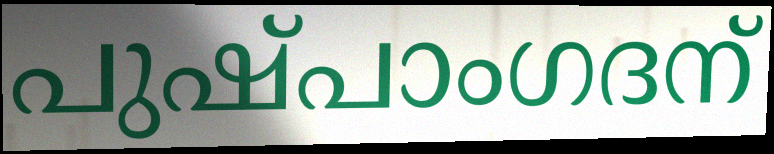
പുഷ്പാംഗദന്